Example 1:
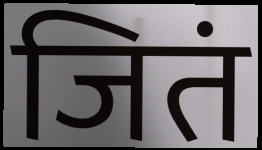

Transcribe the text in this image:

जितं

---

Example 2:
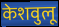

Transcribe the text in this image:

केशवुलू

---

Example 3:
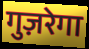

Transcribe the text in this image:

गुज़रेगा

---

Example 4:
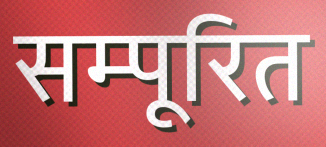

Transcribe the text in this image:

सम्पूरित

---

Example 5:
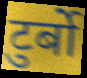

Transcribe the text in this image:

टुर्बो